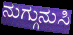
ನುಗ್ಗುನುಸಿ